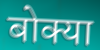
बोक्या